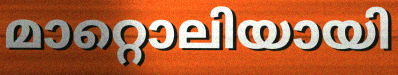
മാറ്റൊലിയായി